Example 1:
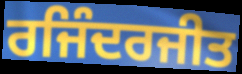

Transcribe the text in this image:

ਰਜਿੰਦਰਜੀਤ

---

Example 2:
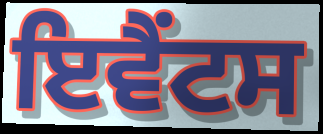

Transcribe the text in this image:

ਇਵੈਂਟਸ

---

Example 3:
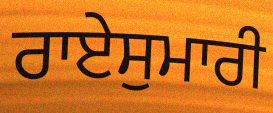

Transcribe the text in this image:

ਰਾਏਸੁਮਾਰੀ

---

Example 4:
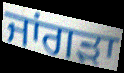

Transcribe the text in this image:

ਜਾਂਗੜਾ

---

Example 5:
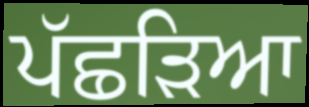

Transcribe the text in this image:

ਪੱਛੜਿਆ